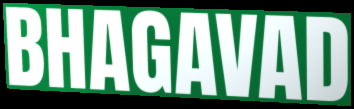
BHAGAVAD